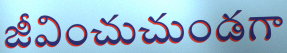
జీవించుచుండగా